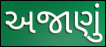
અજાણું